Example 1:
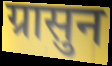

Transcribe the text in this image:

ग्रासुन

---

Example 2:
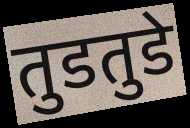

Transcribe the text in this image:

तुडतुडे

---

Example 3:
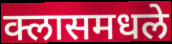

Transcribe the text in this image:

क्लासमधले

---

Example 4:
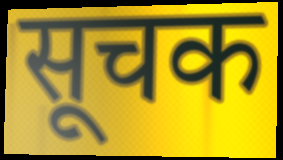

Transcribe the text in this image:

सूचक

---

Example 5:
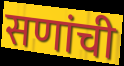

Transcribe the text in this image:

सणांची